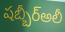
షబ్బీర్అలీ